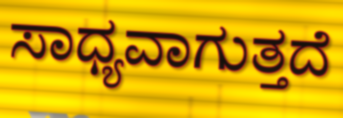
ಸಾಧ್ಯವಾಗುತ್ತದೆ